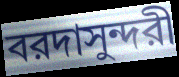
বরদাসুন্দরী